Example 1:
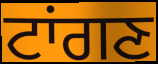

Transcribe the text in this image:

ਟਾਂਗਣ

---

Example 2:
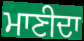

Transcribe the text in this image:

ਮਾਣੀਦਾ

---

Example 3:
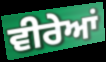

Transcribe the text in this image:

ਵੀਰੇਆਂ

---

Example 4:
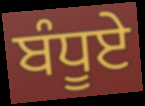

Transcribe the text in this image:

ਬੰਧੂਏ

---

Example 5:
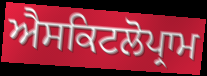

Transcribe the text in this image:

ਐਸਕਿਟਲੋਪ੍ਰਾਮ